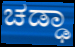
ಚಡ್ಢಾ